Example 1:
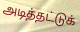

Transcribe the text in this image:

அடித்தட்டுக்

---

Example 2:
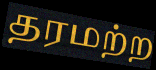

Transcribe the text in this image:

தரமற்ற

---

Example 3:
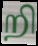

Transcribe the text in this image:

றி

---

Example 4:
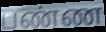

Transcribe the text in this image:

பண்ண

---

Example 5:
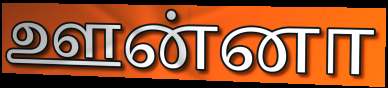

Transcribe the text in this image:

ஊன்னா